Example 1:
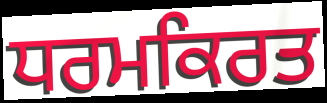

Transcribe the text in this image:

ਧਰਮਕਿਰਤ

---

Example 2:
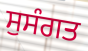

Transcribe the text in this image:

ਸੁਸੰਗਤ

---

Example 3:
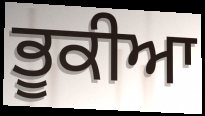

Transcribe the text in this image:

ਭੂਕੀਆ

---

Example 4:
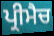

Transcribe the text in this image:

ਪ੍ਰੀਮੈਚ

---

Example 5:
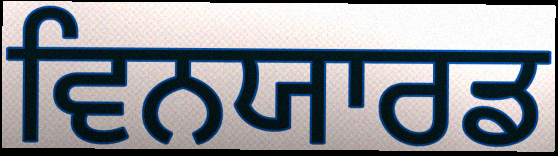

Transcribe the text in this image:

ਵਿਨਯਾਰਡ